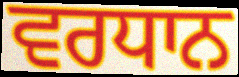
ਵਰਧਾਨ